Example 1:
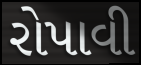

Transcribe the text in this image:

રોપાવી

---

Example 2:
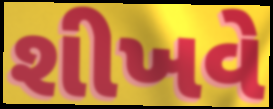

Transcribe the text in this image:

શીખવે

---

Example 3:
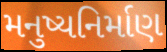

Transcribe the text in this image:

મનુષ્યનિર્માણ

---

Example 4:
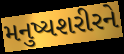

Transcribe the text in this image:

મનુષ્યશરીરને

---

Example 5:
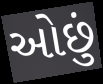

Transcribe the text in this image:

ઓછું